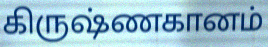
கிருஷ்ணகானம்